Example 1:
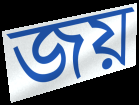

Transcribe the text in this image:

জয়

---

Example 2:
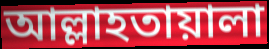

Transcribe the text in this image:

আল্লাহতায়ালা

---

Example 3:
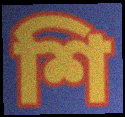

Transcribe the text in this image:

শি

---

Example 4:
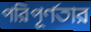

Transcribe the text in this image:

পরিপূর্ণতার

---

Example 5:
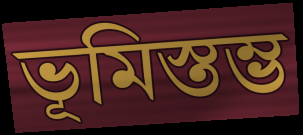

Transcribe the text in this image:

ভূমিস্তম্ভ